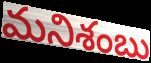
మనిశంబు